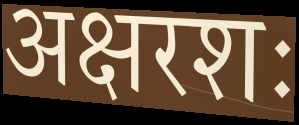
अक्षरशः